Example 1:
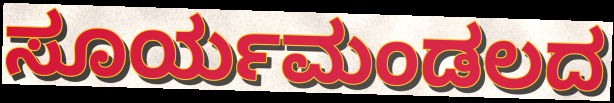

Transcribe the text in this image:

ಸೂರ್ಯಮಂಡಲದ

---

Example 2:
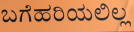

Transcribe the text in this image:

ಬಗೆಹರಿಯಲಿಲ್ಲ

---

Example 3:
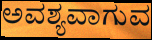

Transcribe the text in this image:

ಅವಶ್ಯವಾಗುವ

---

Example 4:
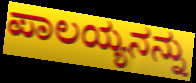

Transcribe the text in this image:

ಪಾಲಯ್ಯನನ್ನು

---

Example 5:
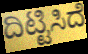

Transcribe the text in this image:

ದಿಟ್ಟಿಸಿದೆ